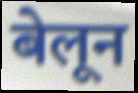
बेलून